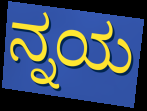
ನ್ನಯ